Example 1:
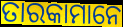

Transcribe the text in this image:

ତାରକାମାନେ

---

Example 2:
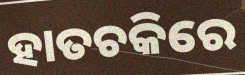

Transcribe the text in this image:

ହାତଚକିରେ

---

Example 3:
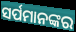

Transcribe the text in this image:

ସର୍ପମାନଙ୍କର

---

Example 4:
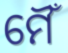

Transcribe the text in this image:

ମୈଁ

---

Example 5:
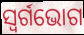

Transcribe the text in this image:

ସ୍ୱର୍ଗଭୋଗ